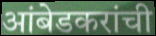
आंबेडकरांची